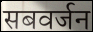
सबवर्जन